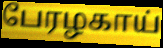
பேரழகாய்